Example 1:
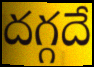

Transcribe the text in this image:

దగ్గదే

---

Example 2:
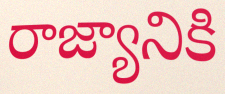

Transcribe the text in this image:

రాజ్యానికి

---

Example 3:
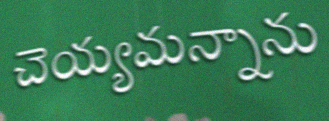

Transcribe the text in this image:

చెయ్యమన్నాను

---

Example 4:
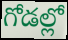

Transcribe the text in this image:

గోడల్లో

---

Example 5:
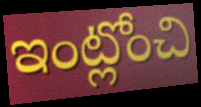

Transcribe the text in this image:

ఇంట్లోంచి